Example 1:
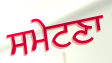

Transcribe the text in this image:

ਸਮੇਟਣਾ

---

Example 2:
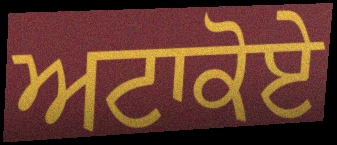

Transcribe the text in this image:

ਅਟਾਕੋਏ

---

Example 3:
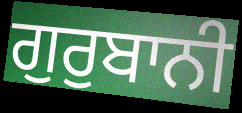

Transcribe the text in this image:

ਗੁਰੁਬਾਨੀ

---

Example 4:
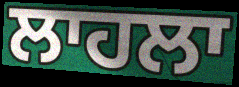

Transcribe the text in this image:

ਲਾਹਲਾ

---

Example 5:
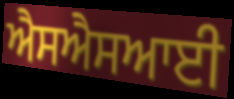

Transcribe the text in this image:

ਐਸਐਸਆਈ